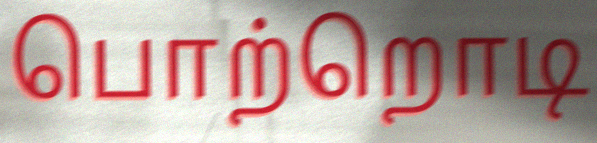
பொற்றொடி